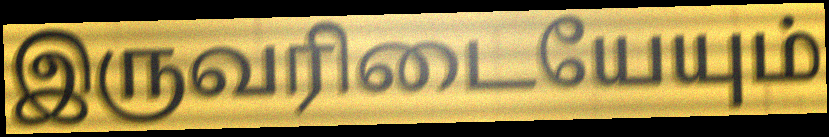
இருவரிடையேயும்